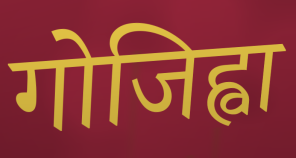
गोजिह्वा